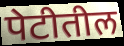
पेटीतील